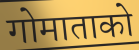
गोमाताको